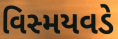
વિસ્મયવડે